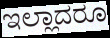
ಇಲ್ಲಾದರೂ